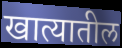
खात्यातील